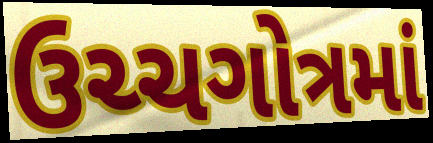
ઉચ્ચગોત્રમાં